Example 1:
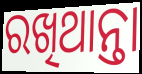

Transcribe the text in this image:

ରଖିଥାନ୍ତା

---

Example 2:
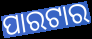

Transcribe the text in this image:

ପାରଟାର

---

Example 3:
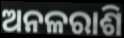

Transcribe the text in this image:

ଅନଳରାଶି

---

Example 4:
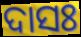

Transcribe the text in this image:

ଦାସଃ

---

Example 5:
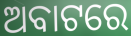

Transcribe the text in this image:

ଅବାଟରେ